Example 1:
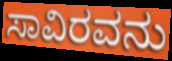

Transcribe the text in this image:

ಸಾವಿರವನು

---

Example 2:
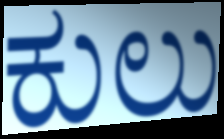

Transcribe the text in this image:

ಕುಲು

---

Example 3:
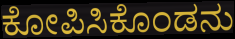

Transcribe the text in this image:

ಕೋಪಿಸಿಕೊಂಡನು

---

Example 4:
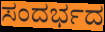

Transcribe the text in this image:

ಸಂದರ್ಭದ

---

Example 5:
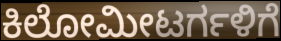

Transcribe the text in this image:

ಕಿಲೋಮೀಟರ್ಗಳಿಗೆ